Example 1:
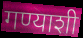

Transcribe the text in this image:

गण्याशी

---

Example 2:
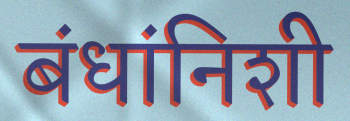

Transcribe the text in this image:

बंधांनिशी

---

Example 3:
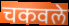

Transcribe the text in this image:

चकवले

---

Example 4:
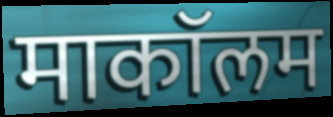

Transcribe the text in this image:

माकॉलम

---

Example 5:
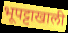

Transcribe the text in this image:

भूपट्टाखाली